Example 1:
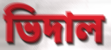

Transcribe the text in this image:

ভিদাল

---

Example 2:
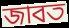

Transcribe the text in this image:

জাবত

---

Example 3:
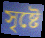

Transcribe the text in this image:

সৃষ্টে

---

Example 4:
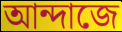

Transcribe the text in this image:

আন্দাজে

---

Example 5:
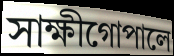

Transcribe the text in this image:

সাক্ষীগোপালে